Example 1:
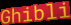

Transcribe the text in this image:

Ghibli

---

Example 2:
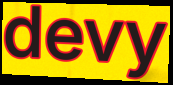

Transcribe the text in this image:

devy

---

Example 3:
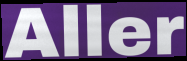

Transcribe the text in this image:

Aller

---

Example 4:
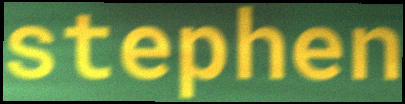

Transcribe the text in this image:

stephen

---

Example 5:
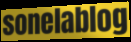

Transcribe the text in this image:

sonelablog